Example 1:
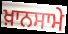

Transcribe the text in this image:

ਖ਼ਾਨਸਾਮੇ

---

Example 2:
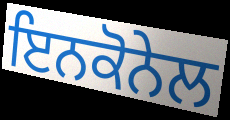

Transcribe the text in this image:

ਇਨਕੋਨੇਲ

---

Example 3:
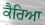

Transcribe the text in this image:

ਕੈਰਿਆ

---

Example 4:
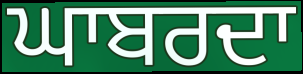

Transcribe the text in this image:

ਘਾਬਰਦਾ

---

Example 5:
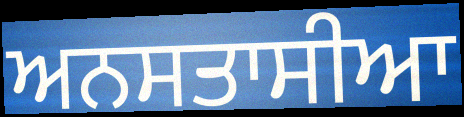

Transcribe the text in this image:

ਅਨਸਤਾਸੀਆ